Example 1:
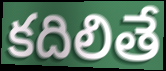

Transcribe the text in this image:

కదిలితే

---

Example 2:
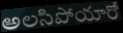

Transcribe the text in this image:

అలసిపోయారో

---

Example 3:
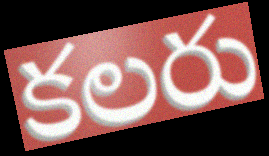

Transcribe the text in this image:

కలరు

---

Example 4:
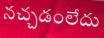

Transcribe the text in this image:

నచ్చడంలేదు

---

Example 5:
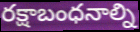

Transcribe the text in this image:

రక్షాబంధనాల్ని